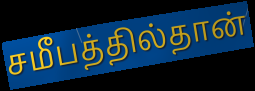
சமீபத்தில்தான்